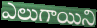
ఎలుగాయిని